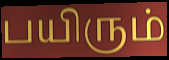
பயிரும்